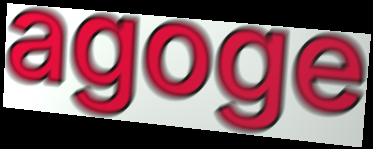
agoge